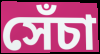
সেঁচা